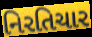
નિરતિચાર